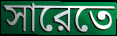
সারেতে